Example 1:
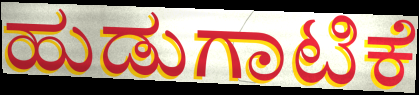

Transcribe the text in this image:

ಹುಡುಗಾಟಿಕೆ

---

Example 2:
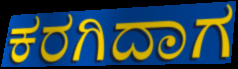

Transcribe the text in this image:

ಕರಗಿದಾಗ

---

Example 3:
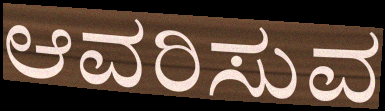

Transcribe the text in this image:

ಆವರಿಸುವ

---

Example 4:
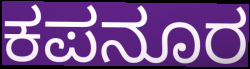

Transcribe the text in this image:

ಕಪನೂರ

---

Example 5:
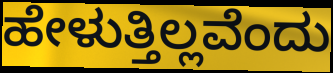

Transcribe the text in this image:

ಹೇಳುತ್ತಿಲ್ಲವೆಂದು